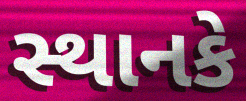
સ્થાનકે